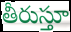
తీరుస్తూ